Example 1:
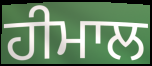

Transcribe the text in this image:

ਹੀਮਾਲ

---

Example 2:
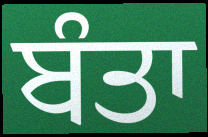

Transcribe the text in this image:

ਬੰਤਾ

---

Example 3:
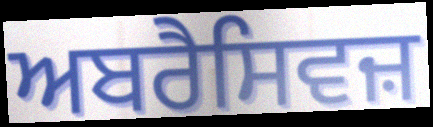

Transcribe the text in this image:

ਅਬਰੈਸਿਵਜ਼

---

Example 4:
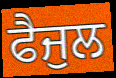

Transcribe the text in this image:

ਫੈਜੁਲ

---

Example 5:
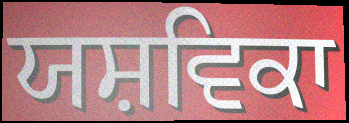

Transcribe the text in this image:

ਯਸ਼ਵਿਕਾ